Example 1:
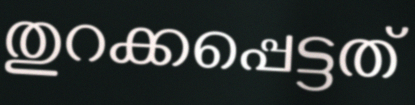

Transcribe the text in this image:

തുറക്കപ്പെട്ടത്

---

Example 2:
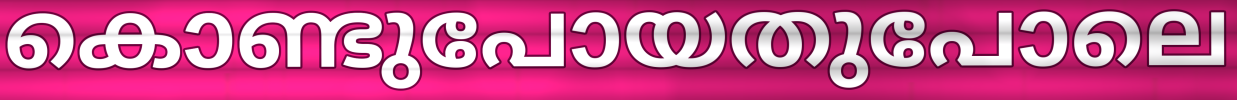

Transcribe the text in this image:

കൊണ്ടുപോയതുപോലെ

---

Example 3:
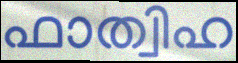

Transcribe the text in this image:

ഫാത്വിഹ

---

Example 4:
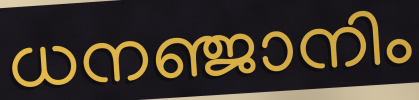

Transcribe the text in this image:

ധനഞ്ജാനിം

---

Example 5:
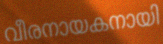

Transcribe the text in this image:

വീരനായകനായി